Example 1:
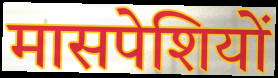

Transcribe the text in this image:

मासपेशियों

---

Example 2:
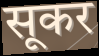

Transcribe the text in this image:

सूकर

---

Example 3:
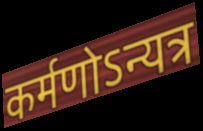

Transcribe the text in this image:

कर्मणोऽन्यत्र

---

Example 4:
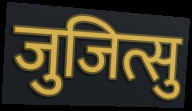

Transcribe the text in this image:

जुजित्सु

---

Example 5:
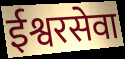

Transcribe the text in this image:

ईश्वरसेवा